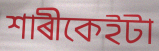
শাৰীকেইটা